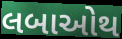
લબાઓથ